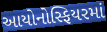
આયોનોસ્ફિયરમાં